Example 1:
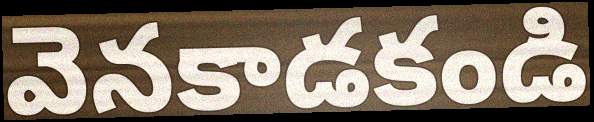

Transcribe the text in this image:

వెనకాడకండి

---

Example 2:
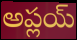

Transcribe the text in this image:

అప్లయ్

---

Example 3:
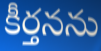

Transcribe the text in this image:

కీర్తనను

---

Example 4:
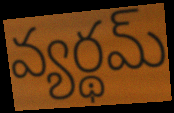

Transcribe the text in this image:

వ్యర్థమ్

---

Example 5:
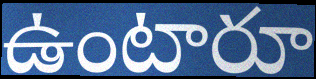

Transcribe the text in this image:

ఉంటారూ